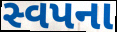
સ્વપના